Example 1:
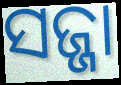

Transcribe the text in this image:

ସଜ୍ଜା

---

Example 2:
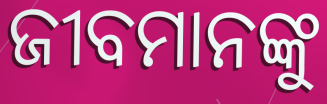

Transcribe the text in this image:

ଜୀବମାନଙ୍କୁ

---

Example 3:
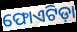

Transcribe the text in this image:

ଫୋଏଟିଡ଼ା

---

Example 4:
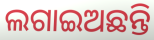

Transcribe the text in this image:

ଲଗାଇଅଛନ୍ତି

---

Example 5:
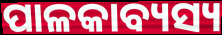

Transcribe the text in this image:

ପାଳକାବ୍ୟସ୍ୟ